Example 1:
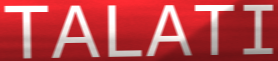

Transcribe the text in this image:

TALATI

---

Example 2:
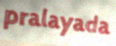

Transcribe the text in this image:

pralayada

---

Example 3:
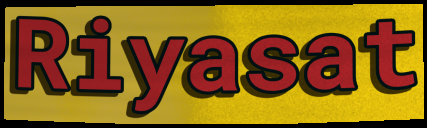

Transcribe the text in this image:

Riyasat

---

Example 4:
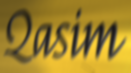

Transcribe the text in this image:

Qasim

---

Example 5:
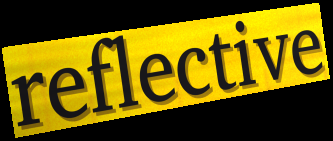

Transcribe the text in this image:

reflective